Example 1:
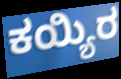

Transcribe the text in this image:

ಕಯ್ಯಿರ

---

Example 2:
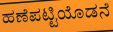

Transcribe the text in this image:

ಹಣೆಪಟ್ಟಿಯೊಡನೆ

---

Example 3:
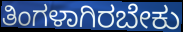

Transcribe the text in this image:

ತಿಂಗಳಾಗಿರಬೇಕು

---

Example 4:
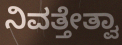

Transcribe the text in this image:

ನಿವತ್ತೇತ್ವಾ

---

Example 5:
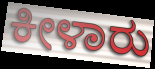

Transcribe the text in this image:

ಕೀಳಾರು